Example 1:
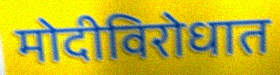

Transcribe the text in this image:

मोदीविरोधात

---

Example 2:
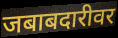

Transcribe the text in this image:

जबाबदारीवर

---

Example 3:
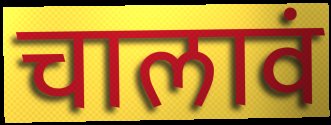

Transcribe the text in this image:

चालावं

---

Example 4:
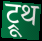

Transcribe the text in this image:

ट्रूथ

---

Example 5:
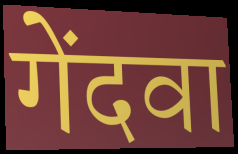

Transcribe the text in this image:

गेंदवा